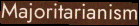
Majoritarianism